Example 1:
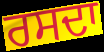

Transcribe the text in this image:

ਰਸਦਾ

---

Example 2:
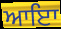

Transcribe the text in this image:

ਆਇਾ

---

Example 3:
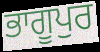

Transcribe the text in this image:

ਭਾਗੂਪੁਰ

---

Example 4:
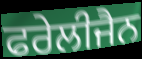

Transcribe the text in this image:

ਫਰੇਲੀਜੈਨ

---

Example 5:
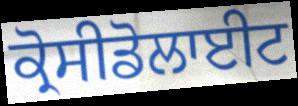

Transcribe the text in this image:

ਕ੍ਰੋਸੀਡੋਲਾਈਟ